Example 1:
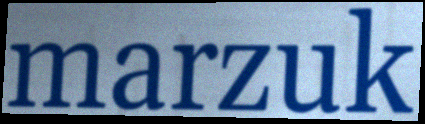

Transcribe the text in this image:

marzuk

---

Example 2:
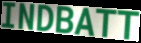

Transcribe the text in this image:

INDBATT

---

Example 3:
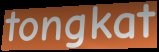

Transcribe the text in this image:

tongkat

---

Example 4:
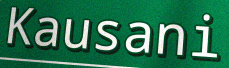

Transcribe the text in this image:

Kausani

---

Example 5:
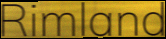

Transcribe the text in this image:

Rimland